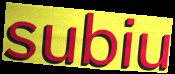
subiu